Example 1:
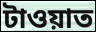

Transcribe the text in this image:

টাওয়াত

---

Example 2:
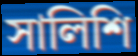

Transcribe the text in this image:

সালিশি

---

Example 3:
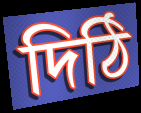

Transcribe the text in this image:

দিঠি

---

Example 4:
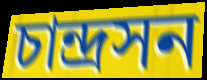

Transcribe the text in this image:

চান্দ্রসন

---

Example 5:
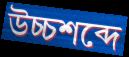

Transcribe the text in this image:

উচ্চশব্দে